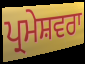
ਪ੍ਰਮੇਸ਼ਵਰਾ